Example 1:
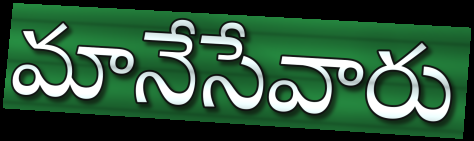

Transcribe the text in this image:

మానేసేవారు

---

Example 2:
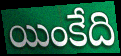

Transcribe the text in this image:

యింకేది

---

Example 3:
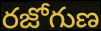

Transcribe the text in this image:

రజోగుణ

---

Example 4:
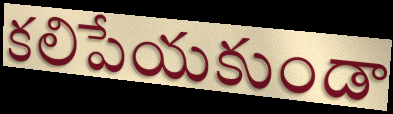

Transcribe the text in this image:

కలిపేయకుండా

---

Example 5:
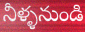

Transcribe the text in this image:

నీళ్ళనుండి